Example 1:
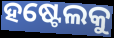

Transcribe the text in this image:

ହଷ୍ଟେଲକୁ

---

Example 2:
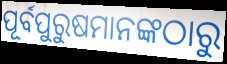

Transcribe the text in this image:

ପୂର୍ବପୁରୁଷମାନଙ୍କଠାରୁ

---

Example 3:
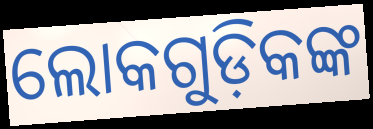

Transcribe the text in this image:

ଲୋକଗୁଡ଼ିକଙ୍କ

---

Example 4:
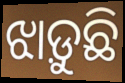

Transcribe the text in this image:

ଝାଡ଼ୁଛି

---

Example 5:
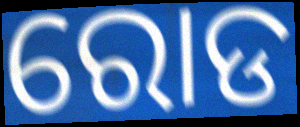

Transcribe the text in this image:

ରୋଡ